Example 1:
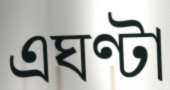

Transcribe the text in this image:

এঘণ্টা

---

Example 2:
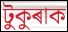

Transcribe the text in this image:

টুকুৰাক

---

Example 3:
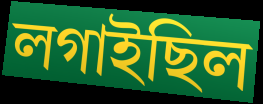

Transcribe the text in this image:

লগাইছিল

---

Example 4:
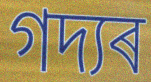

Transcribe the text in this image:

গদ্যৰ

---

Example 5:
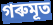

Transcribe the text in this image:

গৰুমূত